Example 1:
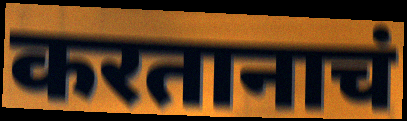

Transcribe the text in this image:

करतानाचं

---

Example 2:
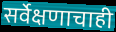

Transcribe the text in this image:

सर्वेक्षणाचाही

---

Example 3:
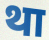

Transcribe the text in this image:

था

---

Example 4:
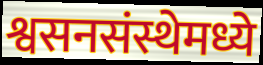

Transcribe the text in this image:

श्वसनसंस्थेमध्ये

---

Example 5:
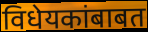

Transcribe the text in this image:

विधेयकांबाबत